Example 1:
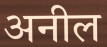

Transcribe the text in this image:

अनील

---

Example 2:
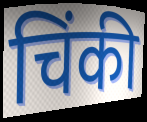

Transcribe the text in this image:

चिंकी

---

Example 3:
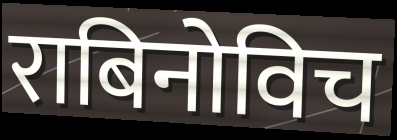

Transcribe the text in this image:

राबिनोविच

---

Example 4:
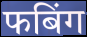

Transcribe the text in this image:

फबिंग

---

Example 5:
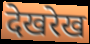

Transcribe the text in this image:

देखरेख